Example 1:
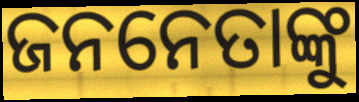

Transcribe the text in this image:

ଜନନେତାଙ୍କୁ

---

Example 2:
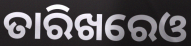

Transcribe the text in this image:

ତାରିଖରେଓ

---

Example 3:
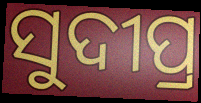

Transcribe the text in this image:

ସୁଦୀପ୍ର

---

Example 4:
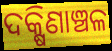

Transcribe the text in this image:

ଦକ୍ଷିଣାଞ୍ଚଳ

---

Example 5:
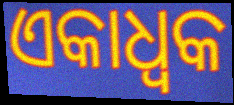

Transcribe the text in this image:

ଏକାଧ୍ଵକ